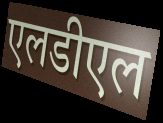
एलडीएल